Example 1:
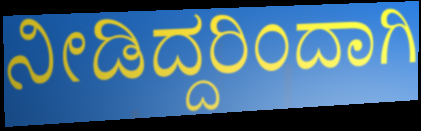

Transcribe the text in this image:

ನೀಡಿದ್ದರಿಂದಾಗಿ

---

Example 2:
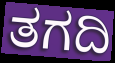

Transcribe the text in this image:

ತಗದಿ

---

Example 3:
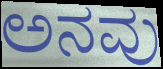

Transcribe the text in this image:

ಅನವು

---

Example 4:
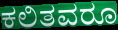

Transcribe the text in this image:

ಕಲಿತವರೂ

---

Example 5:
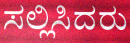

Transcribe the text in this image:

ಸಲ್ಲಿಸಿದರು